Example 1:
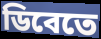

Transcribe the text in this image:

ডিবেতে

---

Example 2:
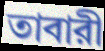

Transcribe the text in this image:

তাবারী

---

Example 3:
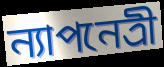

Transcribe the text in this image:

ন্যাপনেত্রী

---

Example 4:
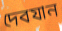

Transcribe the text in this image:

দেবযান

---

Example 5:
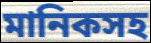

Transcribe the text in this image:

মানিকসহ